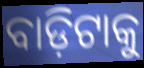
ବାଡ଼ିଟାକୁ